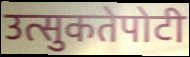
उत्सुकतेपोटी